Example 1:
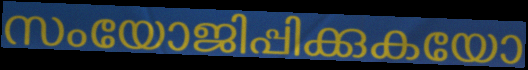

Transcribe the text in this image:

സംയോജിപ്പിക്കുകയോ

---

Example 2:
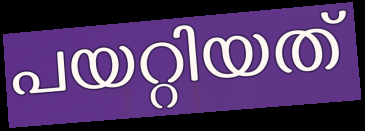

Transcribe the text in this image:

പയറ്റിയത്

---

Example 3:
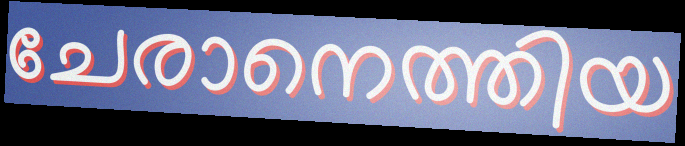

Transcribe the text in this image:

ചേരാനെത്തിയ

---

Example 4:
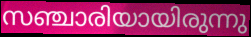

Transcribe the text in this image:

സഞ്ചാരിയായിരുന്നു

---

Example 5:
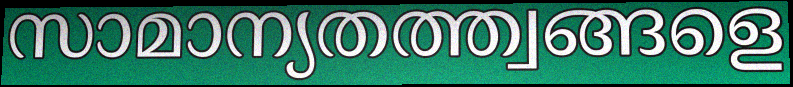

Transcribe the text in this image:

സാമാന്യതത്ത്വങ്ങളെ